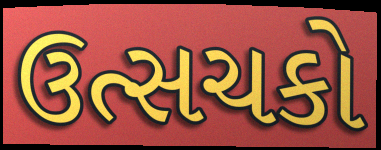
ઉત્સચકો